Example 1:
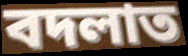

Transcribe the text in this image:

বদলাত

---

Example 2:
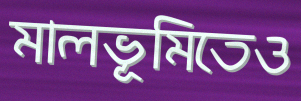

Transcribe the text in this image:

মালভূমিতেও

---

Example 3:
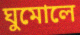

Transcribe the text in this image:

ঘুমোলে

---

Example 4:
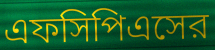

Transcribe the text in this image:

এফসিপিএসের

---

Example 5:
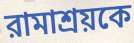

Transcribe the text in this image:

রামাশ্রয়কে